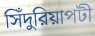
সিঁদুরিয়াপটী